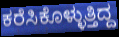
ಕರೆಸಿಕೊಳ್ಳುತ್ತಿದ್ದ